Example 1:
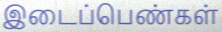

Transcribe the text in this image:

இடைப்பெண்கள்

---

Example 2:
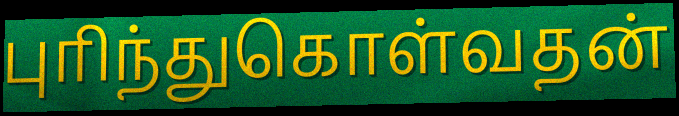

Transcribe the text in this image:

புரிந்துகொள்வதன்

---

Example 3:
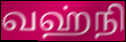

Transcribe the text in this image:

வஹ்நி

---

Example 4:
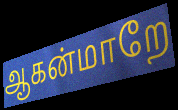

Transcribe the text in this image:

ஆகன்மாறே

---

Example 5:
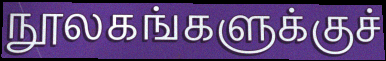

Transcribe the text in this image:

நூலகங்களுக்குச்